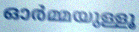
ഓർമ്മയുള്ളൂ